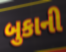
બુકાની